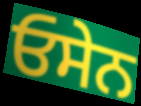
ਓਸੇਨ